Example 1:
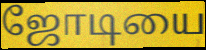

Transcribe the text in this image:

ஜோடியை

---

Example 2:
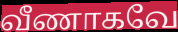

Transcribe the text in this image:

வீணாகவே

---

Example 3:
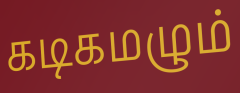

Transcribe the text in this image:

கடிகமழும்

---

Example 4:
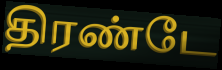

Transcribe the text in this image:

திரண்டே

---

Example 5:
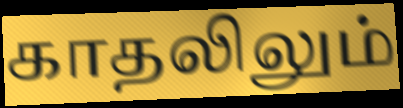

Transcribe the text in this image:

காதலிலும்